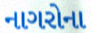
નાગરોના